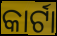
କାର୍ଟା